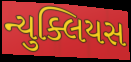
ન્યુક્લિયસ